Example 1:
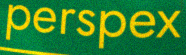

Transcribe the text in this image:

perspex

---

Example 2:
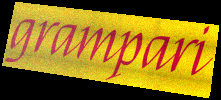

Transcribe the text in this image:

grampari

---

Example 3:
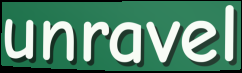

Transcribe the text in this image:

unravel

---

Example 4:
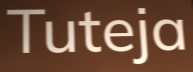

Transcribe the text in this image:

Tuteja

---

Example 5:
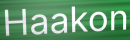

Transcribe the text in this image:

Haakon